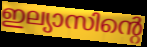
ഇല്യാസിന്റെ